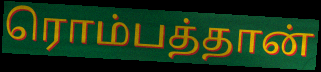
ரொம்பத்தான்